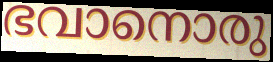
ഭവാനൊരു